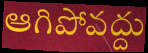
ఆగిపోవద్దు